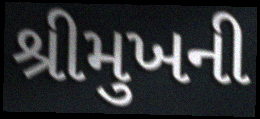
શ્રીમુખની